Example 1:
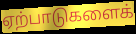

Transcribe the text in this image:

ஏற்பாடுகளைக்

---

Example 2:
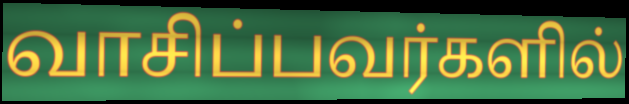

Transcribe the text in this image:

வாசிப்பவர்களில்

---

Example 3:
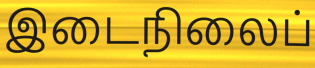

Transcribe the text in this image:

இடைநிலைப்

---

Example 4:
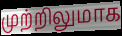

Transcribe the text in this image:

முற்றிலுமாக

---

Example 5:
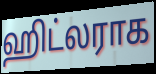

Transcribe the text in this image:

ஹிட்லராக